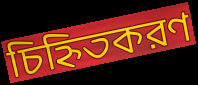
চিহ্নিতকরণ